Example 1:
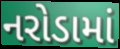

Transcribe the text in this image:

નરોડામાં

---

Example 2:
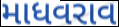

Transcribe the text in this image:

માધવરાવ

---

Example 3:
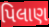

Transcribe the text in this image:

પિલાણ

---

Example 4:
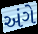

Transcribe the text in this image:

અંગે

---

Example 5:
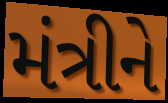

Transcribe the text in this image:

મંત્રીને